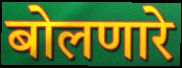
बोलणारे